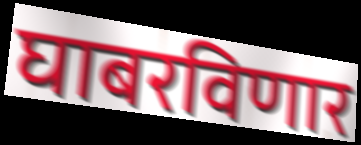
घाबरविणार